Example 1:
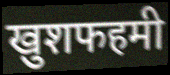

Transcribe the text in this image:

खुशफहमी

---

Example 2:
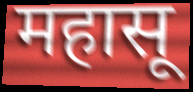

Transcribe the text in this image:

महासू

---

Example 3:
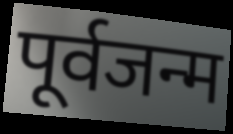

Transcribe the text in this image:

पूर्वजन्‍म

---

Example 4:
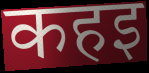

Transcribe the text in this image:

कहइ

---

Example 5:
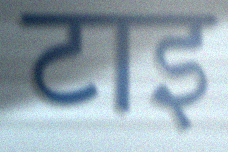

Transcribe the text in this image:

टाइ